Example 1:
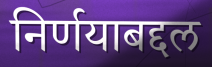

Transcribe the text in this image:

निर्णयाबद्दल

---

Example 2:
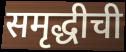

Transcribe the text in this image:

समृद्धीची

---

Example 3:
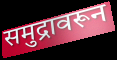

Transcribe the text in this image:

समुद्रावरून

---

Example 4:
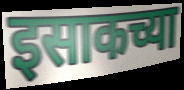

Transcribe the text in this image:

इसाकच्या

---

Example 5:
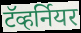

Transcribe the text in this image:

टॅव्हर्नियर